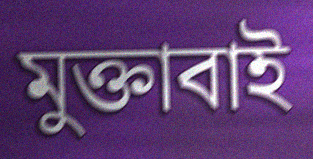
মুক্তাবাই